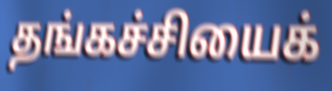
தங்கச்சியைக்